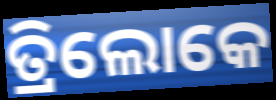
ତ୍ରିଲୋକେ